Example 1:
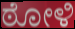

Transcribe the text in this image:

ಠೋಳಿ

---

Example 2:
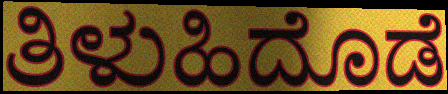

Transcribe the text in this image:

ತಿಳುಹಿದೊಡೆ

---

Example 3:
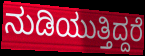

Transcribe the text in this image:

ನುಡಿಯುತ್ತಿದ್ದರೆ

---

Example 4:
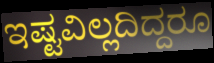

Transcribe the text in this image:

ಇಷ್ಟವಿಲ್ಲದಿದ್ದರೂ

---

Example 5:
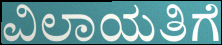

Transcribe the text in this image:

ವಿಲಾಯತಿಗೆ